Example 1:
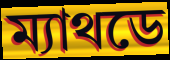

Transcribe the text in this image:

ম্যাথডে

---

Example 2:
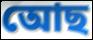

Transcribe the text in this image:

আেছ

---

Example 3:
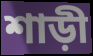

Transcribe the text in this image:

শাড়ী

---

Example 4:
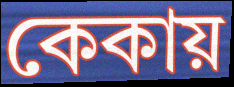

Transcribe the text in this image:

কেকায়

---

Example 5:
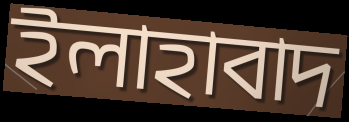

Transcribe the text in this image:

ইলাহাবাদ